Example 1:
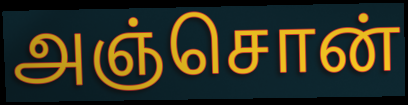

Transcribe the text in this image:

அஞ்சொன்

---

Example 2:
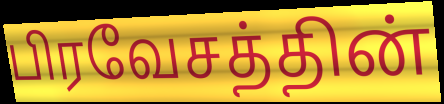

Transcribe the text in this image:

பிரவேசத்தின்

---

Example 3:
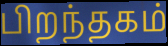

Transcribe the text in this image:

பிறந்தகம்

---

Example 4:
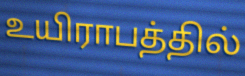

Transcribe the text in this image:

உயிராபத்தில்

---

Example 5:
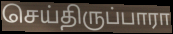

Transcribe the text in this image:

செய்திருப்பாரா